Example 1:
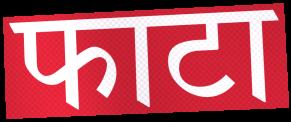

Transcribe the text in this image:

फाटा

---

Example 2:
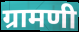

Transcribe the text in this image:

ग्रामणी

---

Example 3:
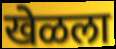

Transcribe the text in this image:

खेळला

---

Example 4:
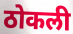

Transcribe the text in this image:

ठोकली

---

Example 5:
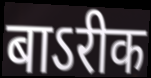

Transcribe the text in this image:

बाऽरीक